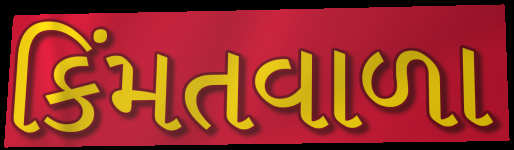
કિંમતવાળા